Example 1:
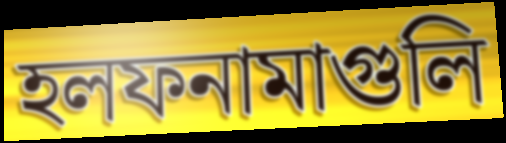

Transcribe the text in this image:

হলফনামাগুলি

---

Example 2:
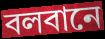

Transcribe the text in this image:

বলবানে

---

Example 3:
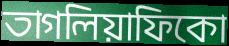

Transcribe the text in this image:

তাগলিয়াফিকো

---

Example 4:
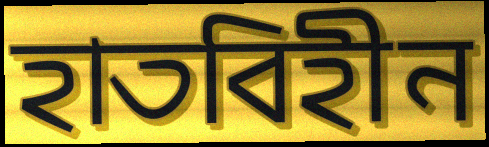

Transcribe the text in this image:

হাতবিহীন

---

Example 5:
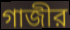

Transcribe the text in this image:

গাজীর